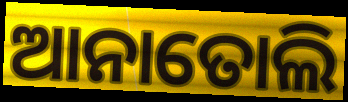
ଆନାତୋଲି